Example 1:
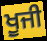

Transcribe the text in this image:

ਖੂਜੀ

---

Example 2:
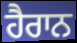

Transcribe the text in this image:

ਹੈਰਾਨ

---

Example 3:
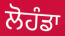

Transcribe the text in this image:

ਲੋਹੰਡਾ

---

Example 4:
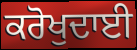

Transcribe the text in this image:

ਕਰੋਖੁਦਾਈ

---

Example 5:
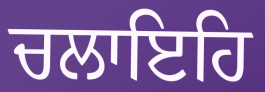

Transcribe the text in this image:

ਚਲਾਇਹਿ